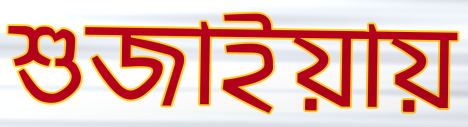
শুজাইয়ায়